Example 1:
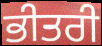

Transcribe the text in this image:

ਭੀਤਰੀ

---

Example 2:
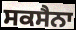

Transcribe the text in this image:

ਸਕਸੈਨਾ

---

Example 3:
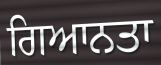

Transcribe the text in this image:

ਗਿਆਨਤਾ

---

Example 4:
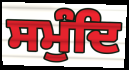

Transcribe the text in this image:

ਸਮੁੰਦਿ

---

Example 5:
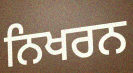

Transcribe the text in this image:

ਨਿਖਰਨ